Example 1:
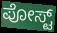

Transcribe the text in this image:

ಪೋಸ್ಟ್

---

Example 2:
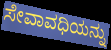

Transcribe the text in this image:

ಸೇವಾವಧಿಯನ್ನು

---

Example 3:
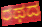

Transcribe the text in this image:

ರಥದ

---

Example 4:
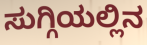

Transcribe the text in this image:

ಸುಗ್ಗಿಯಲ್ಲಿನ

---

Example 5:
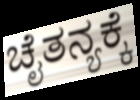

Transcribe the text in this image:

ಚೈತನ್ಯಕ್ಕೆ